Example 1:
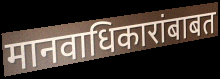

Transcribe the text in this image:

मानवाधिकारांबाबत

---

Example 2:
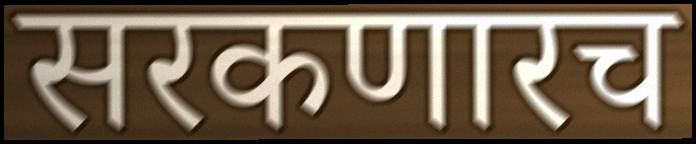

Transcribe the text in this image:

सरकणारच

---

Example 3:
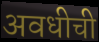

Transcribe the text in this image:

अवधीची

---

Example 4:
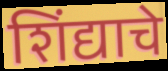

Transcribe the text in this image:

शिंद्याचे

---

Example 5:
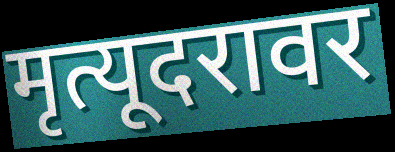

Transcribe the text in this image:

मृत्यूदरावर